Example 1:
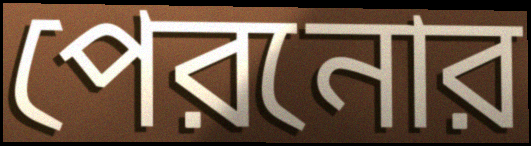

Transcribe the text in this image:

পেরনোর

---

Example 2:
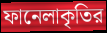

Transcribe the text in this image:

ফানেলাকৃতির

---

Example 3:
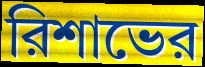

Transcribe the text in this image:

রিশাভের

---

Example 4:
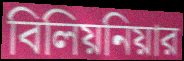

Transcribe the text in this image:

বিলিয়নিয়ার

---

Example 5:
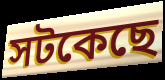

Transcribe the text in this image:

সটকেছে